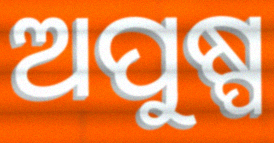
ଅପୁଷ୍ପ